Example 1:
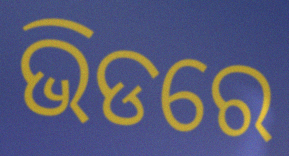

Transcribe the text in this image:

ଭିଡରେ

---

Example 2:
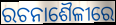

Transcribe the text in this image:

ରଚନାଶୈଳୀରେ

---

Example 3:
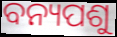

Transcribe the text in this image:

ବନ୍ୟପଶୁ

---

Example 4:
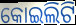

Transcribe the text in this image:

କୋଇଲିଟି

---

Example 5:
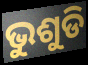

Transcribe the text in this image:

ଭୁଶୁଡି